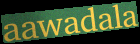
aawadala